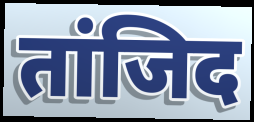
तांजिद